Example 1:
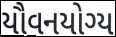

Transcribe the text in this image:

યૌવનયોગ્ય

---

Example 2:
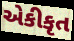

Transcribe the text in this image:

એકીકૃત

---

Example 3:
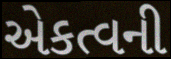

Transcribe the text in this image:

એકત્વની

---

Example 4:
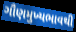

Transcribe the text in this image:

ગૌણમુખ્યભાવથી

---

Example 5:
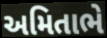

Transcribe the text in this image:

અમિતાભે